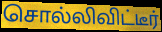
சொல்லிவிட்டீர்